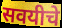
सवयीचे